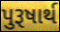
પુરૂષાર્થ